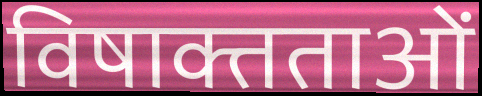
विषाक्तताओं